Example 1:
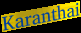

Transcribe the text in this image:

Karanthai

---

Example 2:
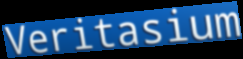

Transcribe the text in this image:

Veritasium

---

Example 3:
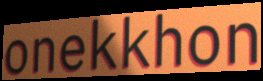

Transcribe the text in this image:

onekkhon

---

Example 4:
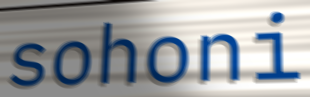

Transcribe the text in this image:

sohoni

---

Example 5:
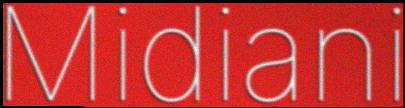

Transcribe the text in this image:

Midiani